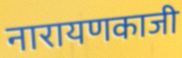
नारायणकाजी